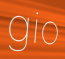
gio